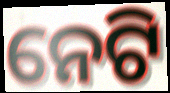
ନେଟି